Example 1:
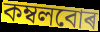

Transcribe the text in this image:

কম্বলবোৰ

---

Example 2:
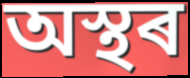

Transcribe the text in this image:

অস্থৰ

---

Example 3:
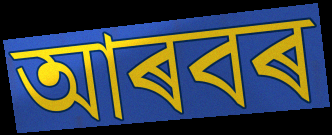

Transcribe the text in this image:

আৰবৰ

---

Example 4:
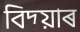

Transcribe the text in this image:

বিদ্য়াৰ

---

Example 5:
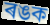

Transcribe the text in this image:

ৰঙক